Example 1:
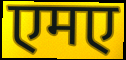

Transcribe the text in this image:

एमए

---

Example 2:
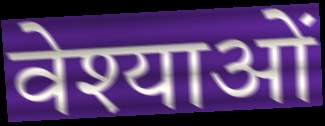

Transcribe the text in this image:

वेश्याओं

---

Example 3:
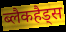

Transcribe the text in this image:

ब्लैकहैड्स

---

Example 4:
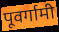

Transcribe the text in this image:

पूवर्गामी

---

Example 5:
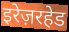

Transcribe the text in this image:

इरेज़रहेड